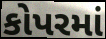
કોપરમાં